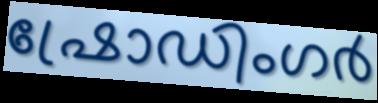
ഷ്രോഡിംഗർ